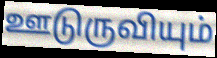
ஊடுருவியும்